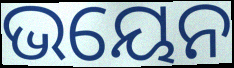
ଭୟେନ